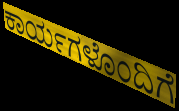
ಕಾರ್ಯಗಳೊಂದಿಗೆ